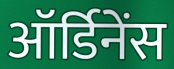
ऑर्डिनेंस